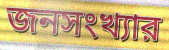
জনসংখ্যার